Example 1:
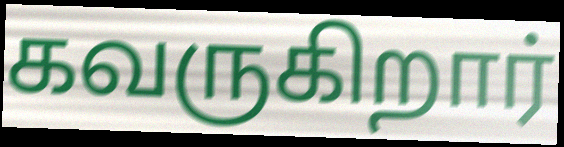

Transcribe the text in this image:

கவருகிறார்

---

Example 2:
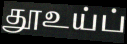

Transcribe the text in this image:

தூஉய்ப்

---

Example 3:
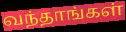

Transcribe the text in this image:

வந்தாங்கள்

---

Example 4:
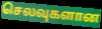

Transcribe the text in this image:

செலவுகளான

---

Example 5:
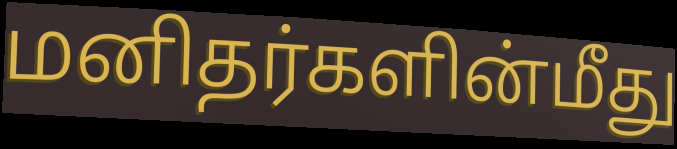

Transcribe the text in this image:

மனிதர்களின்மீது